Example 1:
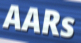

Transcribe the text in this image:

AARs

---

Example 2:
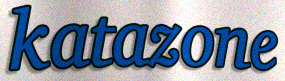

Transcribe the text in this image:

katazone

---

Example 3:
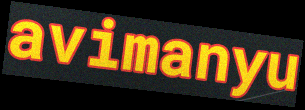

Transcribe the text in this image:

avimanyu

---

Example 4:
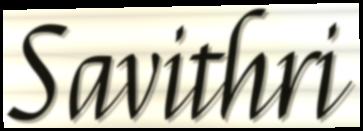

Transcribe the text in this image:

Savithri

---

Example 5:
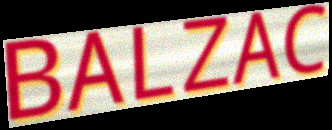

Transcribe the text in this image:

BALZAC